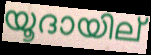
യൂദായില്